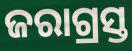
ଜରାଗ୍ରସ୍ତ